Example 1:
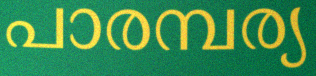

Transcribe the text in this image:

പാരമ്പര്യ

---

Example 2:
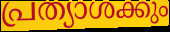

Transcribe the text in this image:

പ്രത്യാശക്കും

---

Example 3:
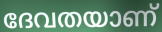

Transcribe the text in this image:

ദേവതയാണ്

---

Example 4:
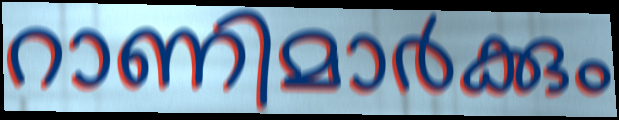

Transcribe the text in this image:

റാണിമാർക്കും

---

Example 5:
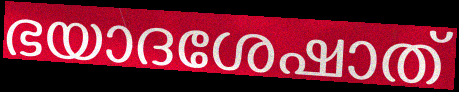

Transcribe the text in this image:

ഭയാദശേഷാത്